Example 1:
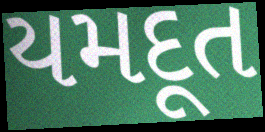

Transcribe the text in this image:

યમદૂત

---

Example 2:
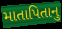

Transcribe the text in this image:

માતાપિતાનુ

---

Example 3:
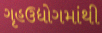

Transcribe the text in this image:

ગૃહઉદ્યોગમાંથી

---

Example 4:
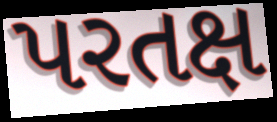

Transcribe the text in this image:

પરતક્ષ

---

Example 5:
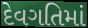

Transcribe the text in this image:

દેવગતિમાં